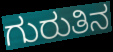
ಗುರುತಿನ